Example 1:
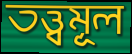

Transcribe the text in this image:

তত্ত্বমূল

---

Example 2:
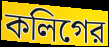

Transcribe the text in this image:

কলিগের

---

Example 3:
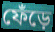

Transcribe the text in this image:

ফেঁড়ে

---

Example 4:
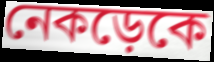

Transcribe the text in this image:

নেকড়েকে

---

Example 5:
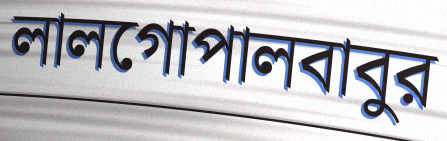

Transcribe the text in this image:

লালগোপালবাবুর